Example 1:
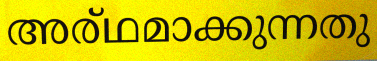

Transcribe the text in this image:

അര്ഥമാക്കുന്നതു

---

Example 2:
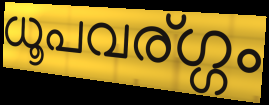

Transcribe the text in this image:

ധൂപവര്ഗ്ഗം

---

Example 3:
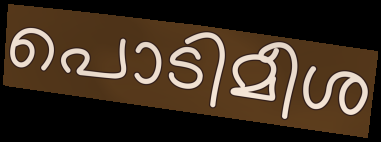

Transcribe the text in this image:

പൊടിമീശ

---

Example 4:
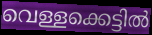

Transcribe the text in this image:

വെള്ളക്കെട്ടിൽ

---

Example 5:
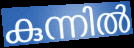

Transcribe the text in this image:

കുന്നിൽ